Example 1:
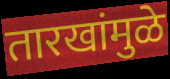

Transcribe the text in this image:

तारखांमुळे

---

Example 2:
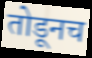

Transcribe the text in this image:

तोडूनच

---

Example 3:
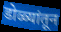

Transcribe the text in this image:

डोळ्यांतून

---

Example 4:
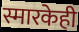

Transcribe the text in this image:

स्मारकेही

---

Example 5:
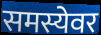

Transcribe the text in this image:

समस्येवर